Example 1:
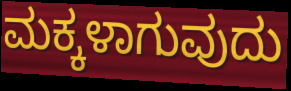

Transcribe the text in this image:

ಮಕ್ಕಳಾಗುವುದು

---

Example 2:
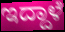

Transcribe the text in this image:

ಇದ್ದಾಳೆ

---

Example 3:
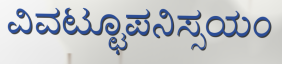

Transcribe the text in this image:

ವಿವಟ್ಟೂಪನಿಸ್ಸಯಂ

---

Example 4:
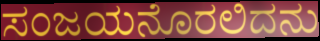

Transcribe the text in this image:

ಸಂಜಯನೊರಲಿದನು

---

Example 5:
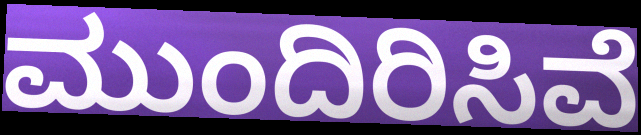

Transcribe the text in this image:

ಮುಂದಿರಿಸಿವೆ